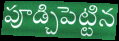
పూడ్చిపెట్టిన